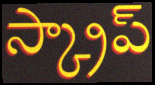
స్క్రాప్